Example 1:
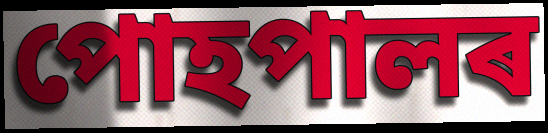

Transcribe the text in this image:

পোহপালৰ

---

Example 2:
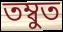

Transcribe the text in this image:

তম্বুত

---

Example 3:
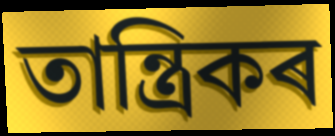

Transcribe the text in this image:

তান্ত্ৰিকৰ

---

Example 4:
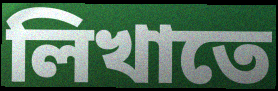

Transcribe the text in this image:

লিখাতে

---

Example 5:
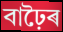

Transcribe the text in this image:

বাঢ়ৈৰ